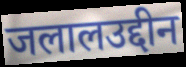
जलालउद्दीन